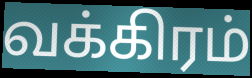
வக்கிரம்